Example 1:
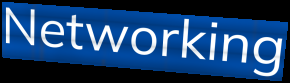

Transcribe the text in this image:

Networking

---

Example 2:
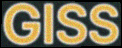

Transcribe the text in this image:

GISS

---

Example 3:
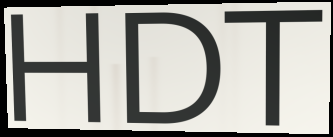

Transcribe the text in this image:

HDT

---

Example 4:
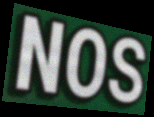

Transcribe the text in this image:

NOS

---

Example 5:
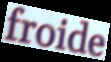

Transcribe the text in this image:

froide